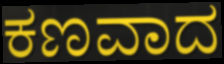
ಕಣವಾದ